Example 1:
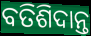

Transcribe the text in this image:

ବତିଶିଦାନ୍ତ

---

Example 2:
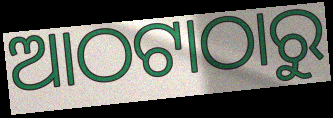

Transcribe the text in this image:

ଆଠଟାଠାରୁ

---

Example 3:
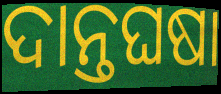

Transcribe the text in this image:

ଦାନ୍ତଘଷା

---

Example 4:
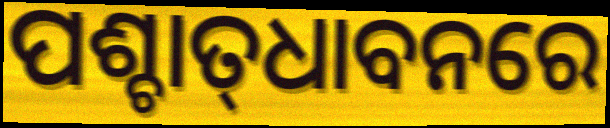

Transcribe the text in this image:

ପଶ୍ଚାତ୍‍ଧାବନରେ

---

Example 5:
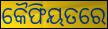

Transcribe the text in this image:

କୈଫିୟତରେ